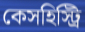
কেসহিস্ট্রি